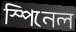
স্পিনেল